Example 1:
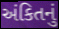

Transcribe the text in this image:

અંકિતનું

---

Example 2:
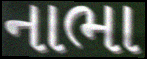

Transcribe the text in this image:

નાભા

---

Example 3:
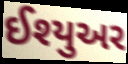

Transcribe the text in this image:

ઈશ્યુઅર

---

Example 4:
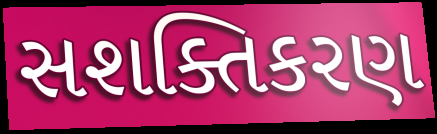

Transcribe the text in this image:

સશક્તિકરણ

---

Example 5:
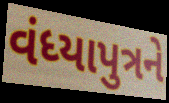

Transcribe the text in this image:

વંધ્યાપુત્રને